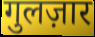
गुलज़ार